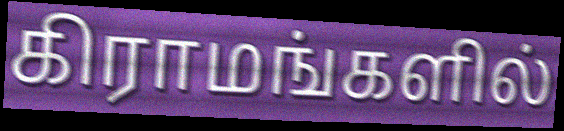
கிராமங்களில்